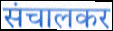
संचालकर